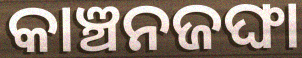
କାଞ୍ଚନଜଙ୍ଘା